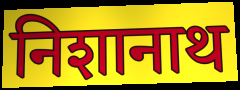
निशानाथ